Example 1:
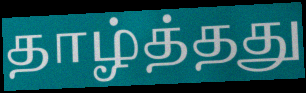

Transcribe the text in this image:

தாழ்த்தது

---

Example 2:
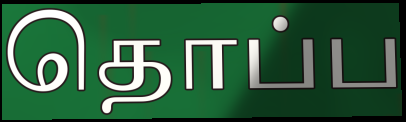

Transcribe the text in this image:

தொப்ப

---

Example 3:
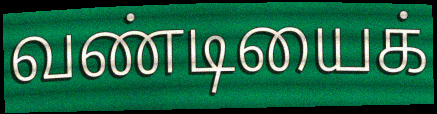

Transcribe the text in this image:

வண்டியைக்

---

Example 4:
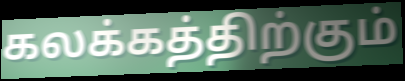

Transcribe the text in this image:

கலக்கத்திற்கும்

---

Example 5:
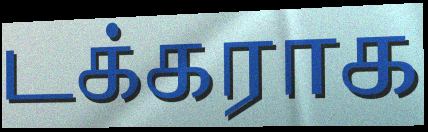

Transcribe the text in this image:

டக்கராக